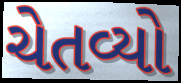
ચેતવ્યો